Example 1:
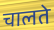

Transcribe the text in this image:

चालते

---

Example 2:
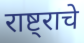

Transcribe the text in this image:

राष्ट्राचे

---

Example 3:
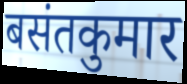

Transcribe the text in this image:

बसंतकुमार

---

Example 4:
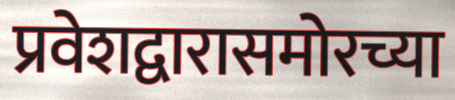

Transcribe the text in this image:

प्रवेशद्वारासमोरच्या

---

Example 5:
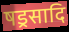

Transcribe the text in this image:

षड्रसादि